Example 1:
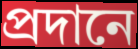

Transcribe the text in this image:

প্ৰদানে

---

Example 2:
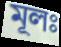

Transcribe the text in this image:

মূলঃ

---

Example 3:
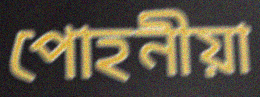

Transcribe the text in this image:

পোহনীয়া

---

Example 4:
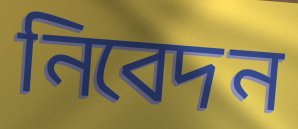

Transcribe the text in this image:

নিবেদন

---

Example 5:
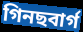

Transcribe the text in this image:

গিনছবাৰ্গ